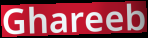
Ghareeb